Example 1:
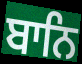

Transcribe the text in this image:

ਬਾਨਿ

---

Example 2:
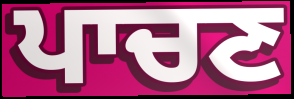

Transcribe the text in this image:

ਪਾਚਣ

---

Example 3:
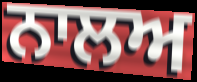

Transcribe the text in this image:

ਨਾਲਅ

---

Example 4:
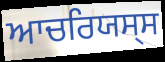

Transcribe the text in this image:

ਆਚਰਿਯਸ੍ਸ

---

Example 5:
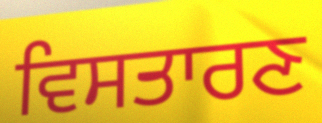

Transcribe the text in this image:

ਵਿਸਤਾਰਣ